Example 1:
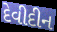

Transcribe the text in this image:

દેવીદીન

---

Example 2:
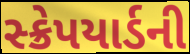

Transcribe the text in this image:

સ્ક્રેપયાર્ડની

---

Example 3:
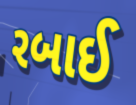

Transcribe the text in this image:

રબાઈ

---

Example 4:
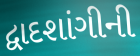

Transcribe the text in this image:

દ્વાદશાંગીની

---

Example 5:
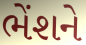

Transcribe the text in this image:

ભેંશને